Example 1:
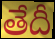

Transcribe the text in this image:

తేదీ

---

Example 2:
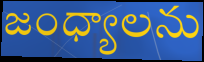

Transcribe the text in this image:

జంధ్యాలను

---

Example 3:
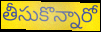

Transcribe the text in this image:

తీసుకొన్నారో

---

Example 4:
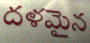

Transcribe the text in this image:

దళమైన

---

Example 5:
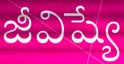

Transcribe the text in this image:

జీవిష్యే